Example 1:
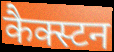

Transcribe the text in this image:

कैक्स्टन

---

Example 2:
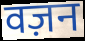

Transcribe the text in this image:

वज़न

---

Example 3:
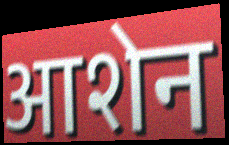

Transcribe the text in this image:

आशेन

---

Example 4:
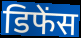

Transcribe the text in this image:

डिफेंस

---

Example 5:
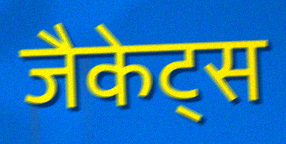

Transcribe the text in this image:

जैकेट्स